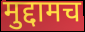
मुद्दामच